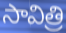
సావిత్రి